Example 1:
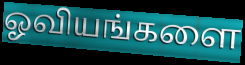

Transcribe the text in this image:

ஓவியங்களை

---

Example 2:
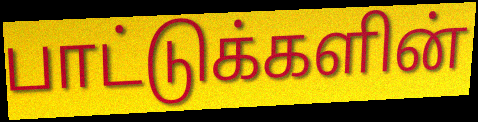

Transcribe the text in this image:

பாட்டுக்களின்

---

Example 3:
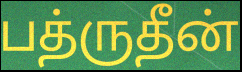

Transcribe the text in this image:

பத்ருதீன்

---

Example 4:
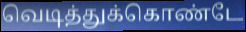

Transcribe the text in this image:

வெடித்துக்கொண்டே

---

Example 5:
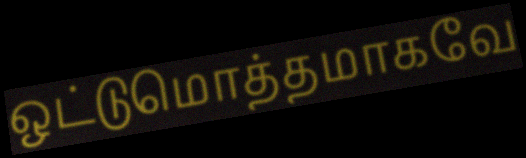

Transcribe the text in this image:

ஒட்டுமொத்தமாகவே